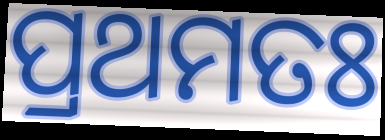
ପ୍ରଥମତଃ